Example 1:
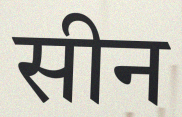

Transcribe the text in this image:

सीन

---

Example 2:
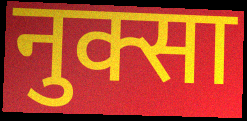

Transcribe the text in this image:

नुक्सा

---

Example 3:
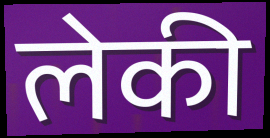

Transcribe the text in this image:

लेकी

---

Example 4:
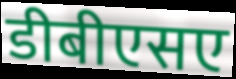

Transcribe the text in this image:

डीबीएसए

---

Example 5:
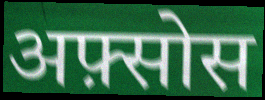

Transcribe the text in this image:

अफ़्सोस